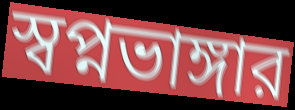
স্বপ্নভাঙ্গার